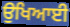
ਉਖਿਆਈ